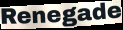
Renegade